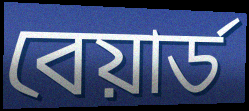
বেয়ার্ড